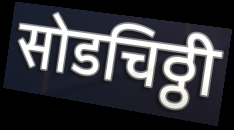
सोडचिठ्ठी